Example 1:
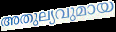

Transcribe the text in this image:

അതുല്യവുമായ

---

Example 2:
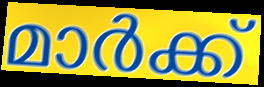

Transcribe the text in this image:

മാർക്ക്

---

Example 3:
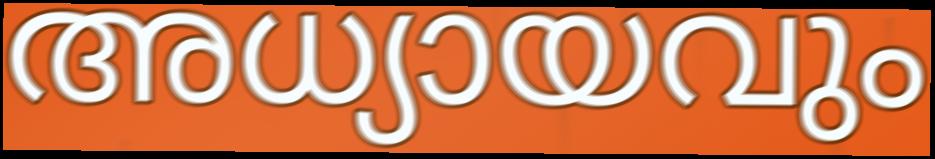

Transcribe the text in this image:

അധ്യായവും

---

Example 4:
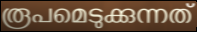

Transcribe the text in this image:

രൂപമെടുക്കുന്നത്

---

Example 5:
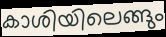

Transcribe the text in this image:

കാശിയിലെങ്ങും